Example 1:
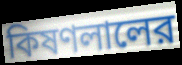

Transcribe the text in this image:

কিষণলালের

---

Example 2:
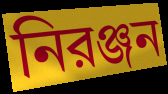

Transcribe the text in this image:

নিরঞ্জন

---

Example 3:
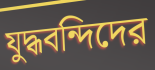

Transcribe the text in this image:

যুদ্ধবন্দিদের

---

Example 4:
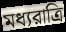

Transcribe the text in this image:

মধ্যরাত্রি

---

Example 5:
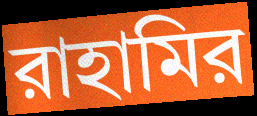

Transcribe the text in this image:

রাহামির